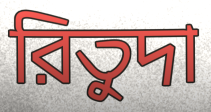
রিতুদা